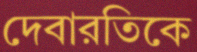
দেবারতিকে